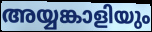
അയ്യങ്കാളിയും